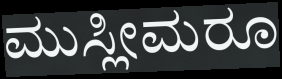
ಮುಸ್ಲೀಮರೂ